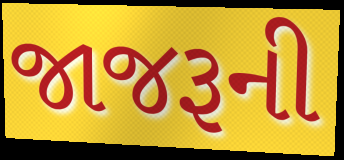
જાજરૂની